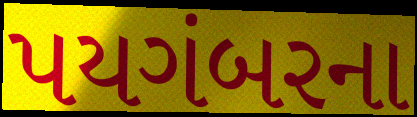
પયગંબરના